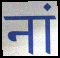
नां